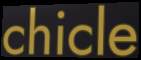
chicle